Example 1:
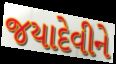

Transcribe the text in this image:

જયાદેવીને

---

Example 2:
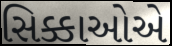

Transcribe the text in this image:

સિક્કાઓએ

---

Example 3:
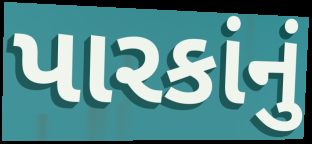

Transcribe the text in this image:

પારકાંનું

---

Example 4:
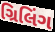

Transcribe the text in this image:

ગ્રિલિંગ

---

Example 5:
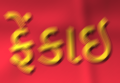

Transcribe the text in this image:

ફેંકાઇ